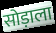
सोड़ाला